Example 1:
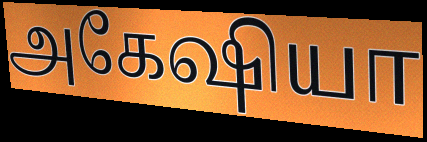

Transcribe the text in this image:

அகேஷியா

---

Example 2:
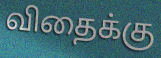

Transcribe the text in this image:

விதைக்கு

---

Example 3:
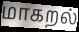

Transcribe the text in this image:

மாகறல்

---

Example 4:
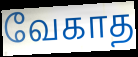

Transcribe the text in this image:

வேகாத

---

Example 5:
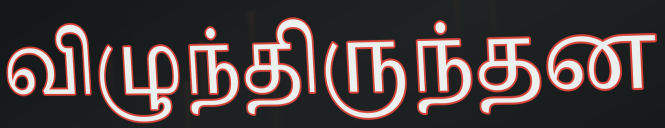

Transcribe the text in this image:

விழுந்திருந்தன